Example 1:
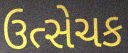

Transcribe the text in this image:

ઉત્સેચક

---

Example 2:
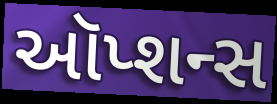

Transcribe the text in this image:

ઑપ્શન્સ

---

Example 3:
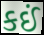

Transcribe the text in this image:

કઈં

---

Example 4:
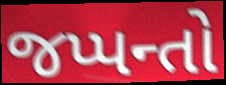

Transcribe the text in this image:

જપ્પન્તો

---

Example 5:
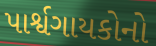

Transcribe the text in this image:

પાર્શ્વગાયકોનો